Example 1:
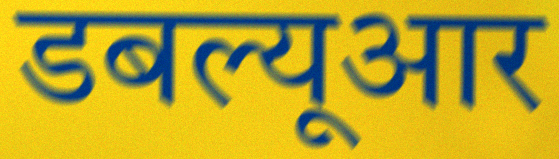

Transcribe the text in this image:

डबल्यूआर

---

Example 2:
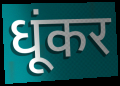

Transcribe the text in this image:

धूंकर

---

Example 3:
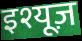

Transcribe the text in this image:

इश्यूज़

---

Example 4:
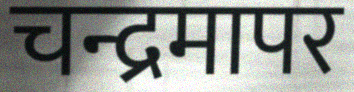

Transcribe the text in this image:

चन्द्रमापर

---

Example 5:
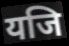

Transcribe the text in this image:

यजि